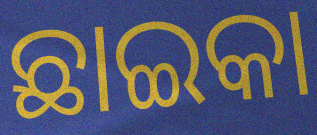
ଛାଇକା